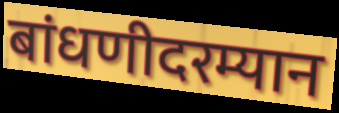
बांधणीदरम्यान